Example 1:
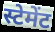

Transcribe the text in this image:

स्टेमेंट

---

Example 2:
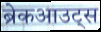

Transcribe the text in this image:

ब्रेकआउट्स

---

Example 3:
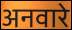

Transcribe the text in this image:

अनवारे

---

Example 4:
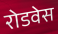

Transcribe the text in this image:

रोडवेस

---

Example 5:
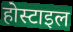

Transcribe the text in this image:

होस्टाइल